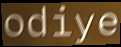
odiye